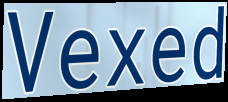
Vexed